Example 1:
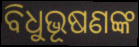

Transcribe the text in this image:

ବିଧୁଭୂଷଣଙ୍କ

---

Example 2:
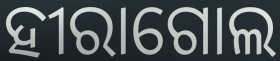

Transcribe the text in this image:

ହୀରାଗୋଲ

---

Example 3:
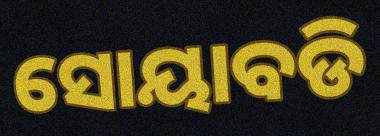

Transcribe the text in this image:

ସୋୟାବଡି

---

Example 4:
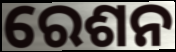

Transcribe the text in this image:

ରେଶନ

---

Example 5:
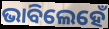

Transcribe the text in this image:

ଭାବିଲେହେଁ